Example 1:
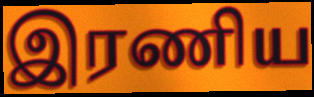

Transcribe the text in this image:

இரணிய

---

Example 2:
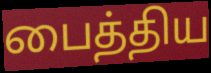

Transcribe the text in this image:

பைத்திய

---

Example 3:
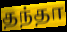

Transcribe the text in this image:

தந்தா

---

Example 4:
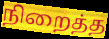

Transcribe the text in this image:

நிறைத்த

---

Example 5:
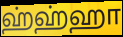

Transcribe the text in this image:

ஹ்ஹ்ஹா